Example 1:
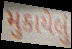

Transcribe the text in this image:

મુકાયેલું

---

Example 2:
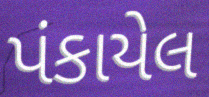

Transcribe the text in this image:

પંકાયેલ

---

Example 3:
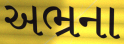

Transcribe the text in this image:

અભ્રના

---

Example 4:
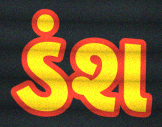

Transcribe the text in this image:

ડંશ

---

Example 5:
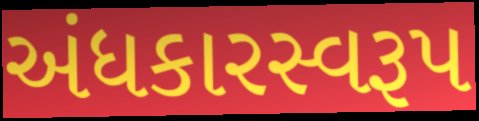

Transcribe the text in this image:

અંધકારસ્વરૂપ